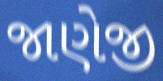
જાણેજી